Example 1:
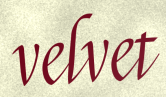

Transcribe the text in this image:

velvet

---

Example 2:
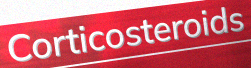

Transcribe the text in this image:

Corticosteroids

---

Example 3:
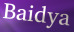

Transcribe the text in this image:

Baidya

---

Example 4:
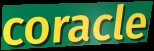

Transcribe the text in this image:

coracle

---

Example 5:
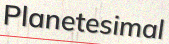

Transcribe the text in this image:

Planetesimal